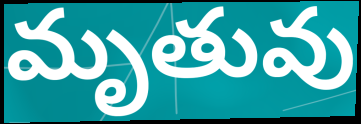
మృతువు